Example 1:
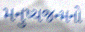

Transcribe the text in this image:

મનુષ્યજન્મનો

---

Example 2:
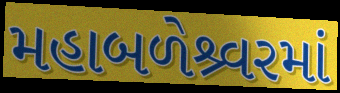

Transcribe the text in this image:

મહાબળેશ્ર્વરમાં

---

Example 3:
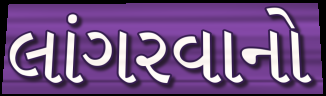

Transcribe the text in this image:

લાંગરવાનો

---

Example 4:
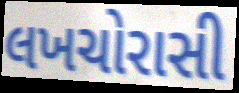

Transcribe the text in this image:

લખચોરાસી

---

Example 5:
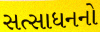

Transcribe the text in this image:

સત્સાધનનો